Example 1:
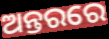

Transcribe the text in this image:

ଅନ୍ତରରେ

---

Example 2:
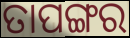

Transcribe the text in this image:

ତାପଙ୍ଗର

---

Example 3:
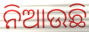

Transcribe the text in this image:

ନିଆଉଛି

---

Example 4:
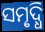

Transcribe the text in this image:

ସମୃଦ୍ଧି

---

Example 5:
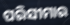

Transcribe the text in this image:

ପରିସୀମାର